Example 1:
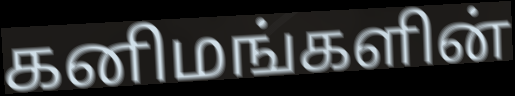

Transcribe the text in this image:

கனிமங்களின்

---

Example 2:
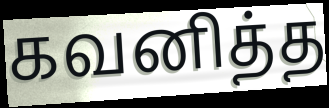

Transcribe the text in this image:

கவனித்த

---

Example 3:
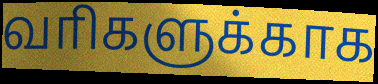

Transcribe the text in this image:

வரிகளுக்காக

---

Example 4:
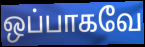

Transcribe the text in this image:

ஒப்பாகவே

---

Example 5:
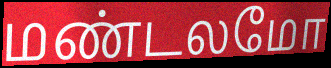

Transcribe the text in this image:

மண்டலமோ